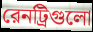
রেনট্রিগুলো